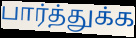
பார்த்துக்க